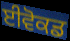
ਈਵੋਕਡ